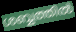
ശബ്ബത്തിൽ